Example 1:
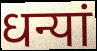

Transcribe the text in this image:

धन्यां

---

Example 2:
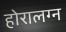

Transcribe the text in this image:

होरालग्न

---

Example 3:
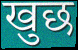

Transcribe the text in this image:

खुछ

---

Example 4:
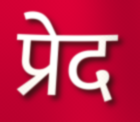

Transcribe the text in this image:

प्रेद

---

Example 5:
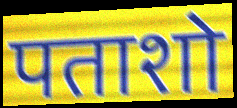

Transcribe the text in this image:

पताशो